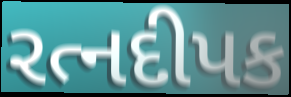
રત્નદીપક